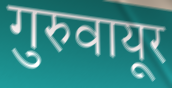
गुरुवायूर